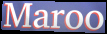
Maroo